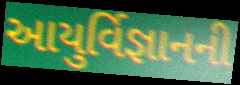
આયુર્વિજ્ઞાનની